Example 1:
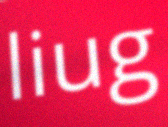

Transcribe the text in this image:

liug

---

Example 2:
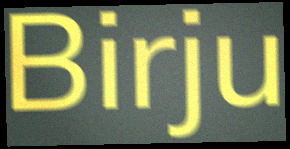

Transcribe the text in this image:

Birju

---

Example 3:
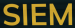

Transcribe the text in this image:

SIEM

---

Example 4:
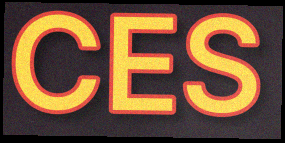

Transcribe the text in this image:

CES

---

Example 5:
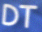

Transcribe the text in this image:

DT